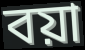
বয়া